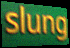
slung